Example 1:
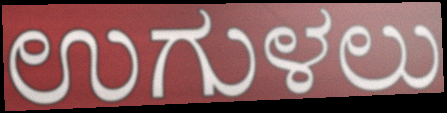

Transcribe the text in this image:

ಉಗುಳಲು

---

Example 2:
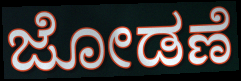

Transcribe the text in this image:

ಜೋಡಣೆ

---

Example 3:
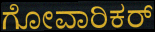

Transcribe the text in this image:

ಗೋವಾರಿಕರ್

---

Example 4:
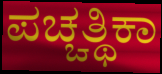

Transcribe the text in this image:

ಪಚ್ಚತ್ಥಿಕಾ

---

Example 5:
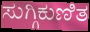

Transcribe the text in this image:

ಸುಗ್ಗಿಕುಣಿತ